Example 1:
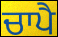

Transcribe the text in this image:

ਚਾਪੈ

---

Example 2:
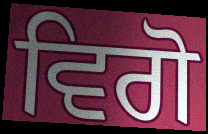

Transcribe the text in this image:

ਵਿਗੋ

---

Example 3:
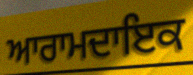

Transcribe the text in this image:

ਆਰਾਮਦਾਇਕ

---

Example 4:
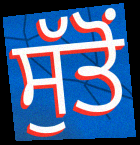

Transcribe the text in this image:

ਸੁੱਤੋਂ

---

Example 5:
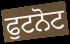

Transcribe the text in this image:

ਫੁਟਨੋਟ